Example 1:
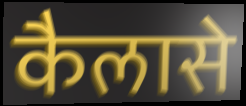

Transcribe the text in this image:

कैलासे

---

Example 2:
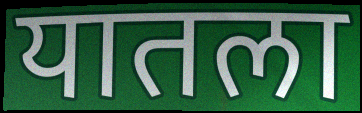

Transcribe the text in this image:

यातला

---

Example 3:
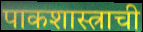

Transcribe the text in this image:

पाकशास्त्राची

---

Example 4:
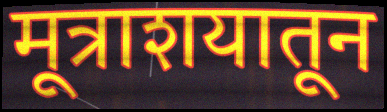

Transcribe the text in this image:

मूत्राशयातून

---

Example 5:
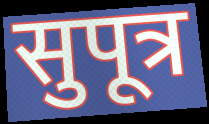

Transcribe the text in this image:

सुपूत्र